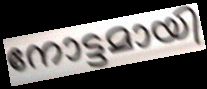
നോട്ടമായി